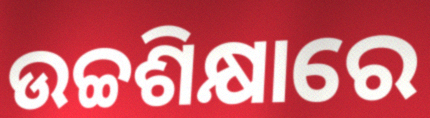
ଉଚ୍ଚଶିକ୍ଷାରେ